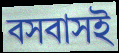
বসবাসই